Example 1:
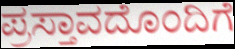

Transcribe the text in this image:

ಪ್ರಸ್ತಾವದೊಂದಿಗೆ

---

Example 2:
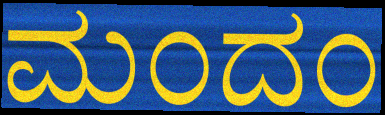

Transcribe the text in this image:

ಮಂದಂ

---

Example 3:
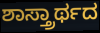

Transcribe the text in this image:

ಶಾಸ್ತ್ರಾರ್ಥದ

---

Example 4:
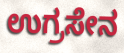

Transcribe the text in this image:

ಉಗ್ರಸೇನ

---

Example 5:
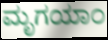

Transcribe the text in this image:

ಮೃಗಯಾಂ